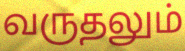
வருதலும்